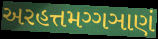
અરહત્તમગ્ગઞાણં